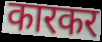
कारकर